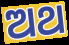
ଅଥ